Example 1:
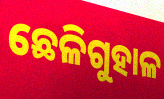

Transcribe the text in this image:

ଛେଳିଗୁହାଳ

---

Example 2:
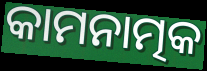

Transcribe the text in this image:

କାମନାତ୍ମକ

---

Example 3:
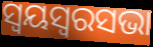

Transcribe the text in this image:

ସ୍ୱୟସ୍ୱରସଭା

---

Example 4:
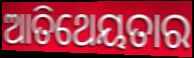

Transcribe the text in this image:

ଆତିଥେୟତାର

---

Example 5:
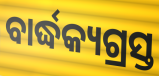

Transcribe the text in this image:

ବାର୍ଦ୍ଧକ୍ୟଗ୍ରସ୍ତ